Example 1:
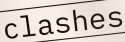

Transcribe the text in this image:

clashes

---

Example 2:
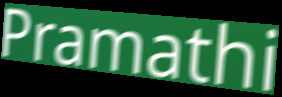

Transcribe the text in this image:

Pramathi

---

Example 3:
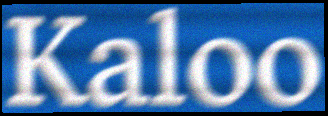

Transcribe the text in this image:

Kaloo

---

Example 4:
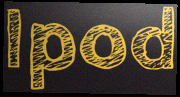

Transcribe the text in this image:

Ipod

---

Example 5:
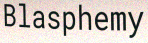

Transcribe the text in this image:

Blasphemy